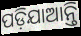
ପଡ଼ିଯାଆନ୍ତି